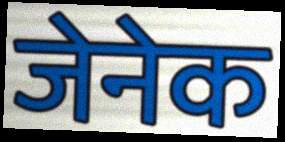
जेनेक